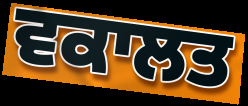
ਵਕਾਲਤ